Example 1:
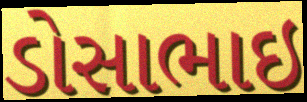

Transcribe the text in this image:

ડોસાભાઇ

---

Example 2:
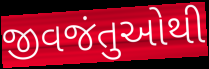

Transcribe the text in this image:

જીવજંતુઓથી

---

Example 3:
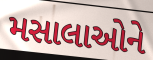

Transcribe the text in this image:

મસાલાઓને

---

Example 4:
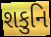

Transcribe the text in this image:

શકુનિ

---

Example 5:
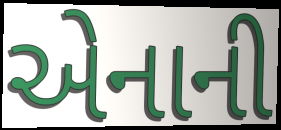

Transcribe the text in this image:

એનાની